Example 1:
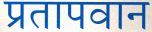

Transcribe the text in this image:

प्रतापवान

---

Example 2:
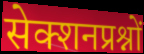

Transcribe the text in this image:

सेक्शनप्रश्नों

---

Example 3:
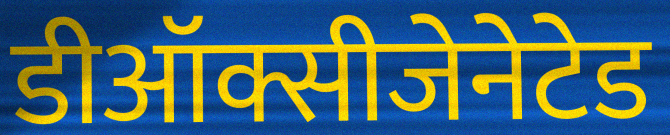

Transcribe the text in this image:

डीऑक्सीजेनेटेड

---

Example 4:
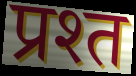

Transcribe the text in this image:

प्रश्त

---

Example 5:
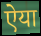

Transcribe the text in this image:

ऐया